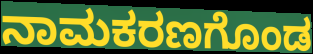
ನಾಮಕರಣಗೊಂಡ